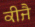
ਕੀਜੈ